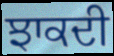
ਝਾਕਦੀ